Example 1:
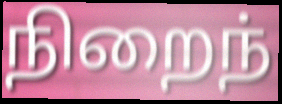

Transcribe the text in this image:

நிறைந்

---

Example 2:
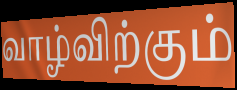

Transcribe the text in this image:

வாழ்விற்கும்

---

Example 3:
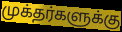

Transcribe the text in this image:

முக்தர்களுக்கு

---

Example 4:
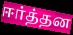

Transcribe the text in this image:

ஈர்த்தன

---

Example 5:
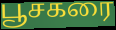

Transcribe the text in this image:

பூசகரை